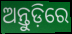
ଅନ୍ତୁଡ଼ିରେ